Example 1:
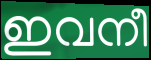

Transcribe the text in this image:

ഇവനീ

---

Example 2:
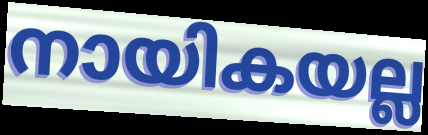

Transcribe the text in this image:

നായികയല്ല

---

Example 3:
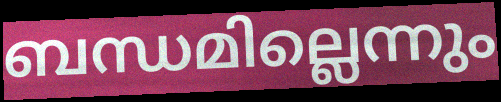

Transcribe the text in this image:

ബന്ധമില്ലെന്നും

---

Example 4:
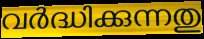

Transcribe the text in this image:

വർദ്ധിക്കുന്നതു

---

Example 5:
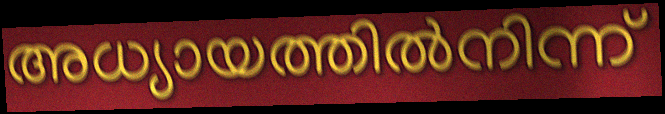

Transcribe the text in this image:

അധ്യായത്തിൽനിന്ന്